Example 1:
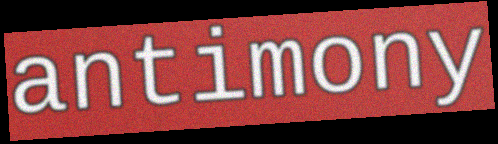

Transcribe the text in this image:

antimony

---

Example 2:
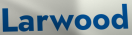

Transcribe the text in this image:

Larwood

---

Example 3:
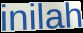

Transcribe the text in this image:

inilah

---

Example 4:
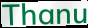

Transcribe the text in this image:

Thanu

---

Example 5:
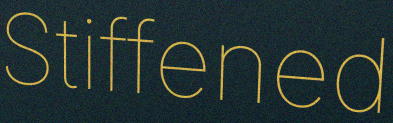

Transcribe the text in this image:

Stiffened